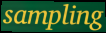
sampling